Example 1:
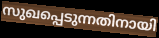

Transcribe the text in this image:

സുഖപ്പെടുന്നതിനായി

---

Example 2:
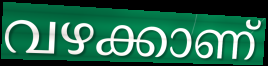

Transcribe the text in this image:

വഴക്കാണ്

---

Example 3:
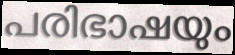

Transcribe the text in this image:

പരിഭാഷയും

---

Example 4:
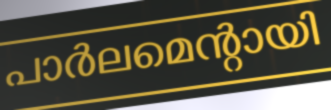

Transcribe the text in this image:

പാർലമെന്റായി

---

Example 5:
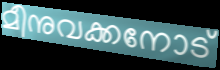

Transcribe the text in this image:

മീനുവക്കനോട്